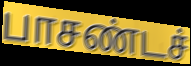
பாசண்டச்